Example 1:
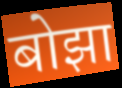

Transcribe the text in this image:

बोझा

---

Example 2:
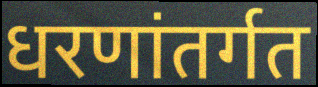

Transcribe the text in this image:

धरणांतर्गत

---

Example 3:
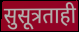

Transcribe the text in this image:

सुसूत्रताही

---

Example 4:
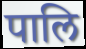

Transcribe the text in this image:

पालि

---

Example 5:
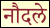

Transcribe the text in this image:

नौदले